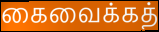
கைவைக்கத்